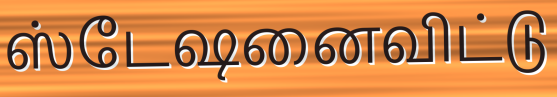
ஸ்டேஷனைவிட்டு